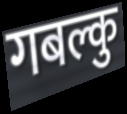
गबल्कु